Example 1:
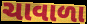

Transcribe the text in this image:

ચાવાળા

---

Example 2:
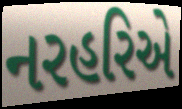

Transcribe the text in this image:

નરહરિએ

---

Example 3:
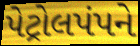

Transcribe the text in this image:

પેટ્રોલપંપને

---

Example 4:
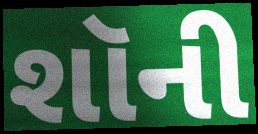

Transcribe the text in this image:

શૉની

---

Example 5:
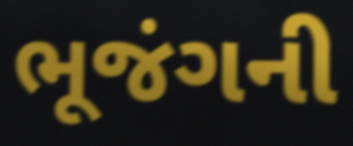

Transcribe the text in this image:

ભૂજંગની